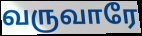
வருவாரே